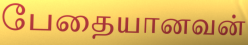
பேதையானவன்